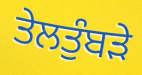
ਤੇਲਤੁੰਬੜੇ